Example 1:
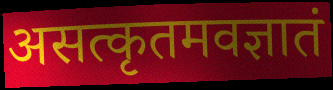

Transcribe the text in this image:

असत्कृतमवज्ञातं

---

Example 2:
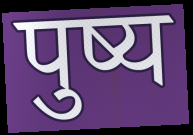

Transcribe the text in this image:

पुष्य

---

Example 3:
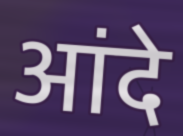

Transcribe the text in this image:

आंदे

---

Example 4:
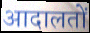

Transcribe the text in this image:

आदालतों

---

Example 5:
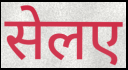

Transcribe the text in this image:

सेलए